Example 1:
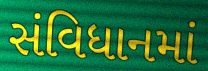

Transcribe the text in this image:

સંવિધાનમાં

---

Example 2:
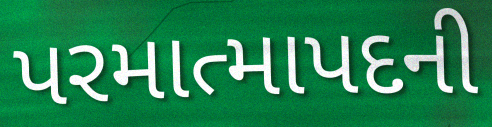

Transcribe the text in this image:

પરમાત્માપદની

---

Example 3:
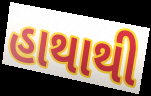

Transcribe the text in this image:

હાથાથી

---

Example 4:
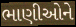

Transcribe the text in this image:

ભાણીઓને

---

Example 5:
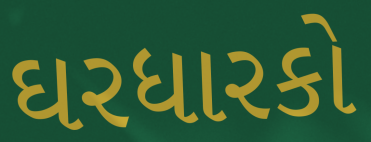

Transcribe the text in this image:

ઘરધારકો